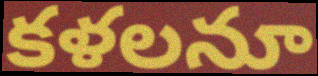
కళలనూ